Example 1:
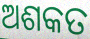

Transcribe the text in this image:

ଅଶକତ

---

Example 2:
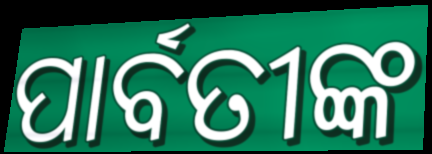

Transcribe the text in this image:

ପାର୍ବତୀଙ୍କ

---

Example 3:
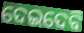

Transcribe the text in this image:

ଦେଇଦେବି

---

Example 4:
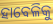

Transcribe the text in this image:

ହାବେଳିକୁ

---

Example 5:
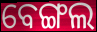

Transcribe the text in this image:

ବେଙ୍ଗଲ